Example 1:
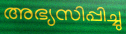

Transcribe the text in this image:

അഭ്യസിപ്പിച്ചു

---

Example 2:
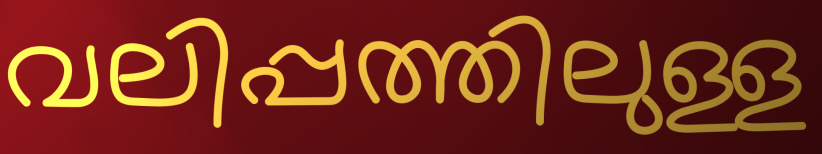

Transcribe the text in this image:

വലിപ്പത്തിലുള്ള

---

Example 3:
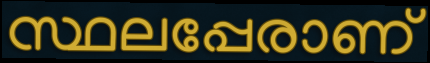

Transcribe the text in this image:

സ്ഥലപ്പേരാണ്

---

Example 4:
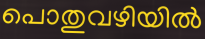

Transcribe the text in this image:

പൊതുവഴിയിൽ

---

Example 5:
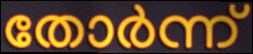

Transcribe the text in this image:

തോർന്ന്